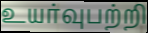
உயர்வுபற்றி